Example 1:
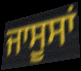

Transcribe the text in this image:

ਜਾਸੂਸਾਂ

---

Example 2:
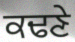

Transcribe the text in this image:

ਕਢਣੇ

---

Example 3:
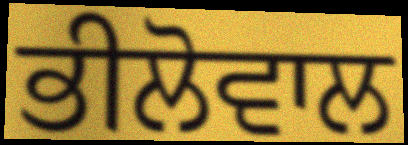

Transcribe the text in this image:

ਭੀਲੋਵਾਲ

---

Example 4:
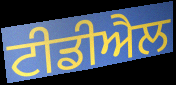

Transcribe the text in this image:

ਟੀਡੀਐਲ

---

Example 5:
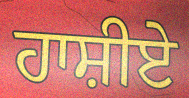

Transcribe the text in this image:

ਹਾਸ਼ੀਏ